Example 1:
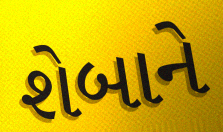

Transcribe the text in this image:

શેબાને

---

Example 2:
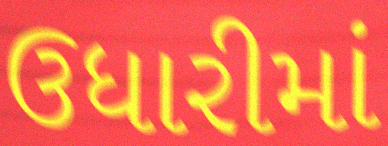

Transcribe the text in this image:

ઉધારીમાં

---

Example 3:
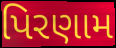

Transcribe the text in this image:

પિરણામ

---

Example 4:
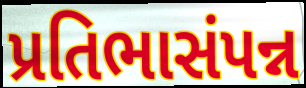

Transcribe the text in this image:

પ્રતિભાસંપન્ન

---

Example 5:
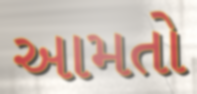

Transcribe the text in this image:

આમતો